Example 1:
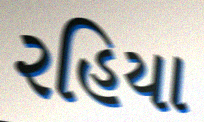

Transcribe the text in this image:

રહિયા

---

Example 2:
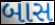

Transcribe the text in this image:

બાસ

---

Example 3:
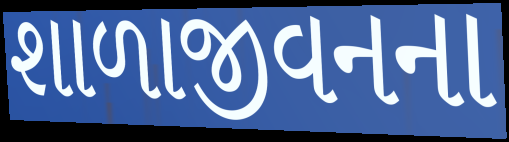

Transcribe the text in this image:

શાળાજીવનના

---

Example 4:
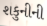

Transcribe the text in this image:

શકુનીની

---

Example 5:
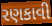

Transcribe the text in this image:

રણકાવી